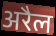
अरैल